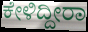
ಕೇಳಿದ್ದೀರಾ